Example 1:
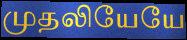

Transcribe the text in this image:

முதலியேயே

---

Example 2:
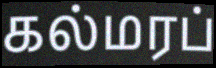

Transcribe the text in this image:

கல்மரப்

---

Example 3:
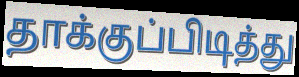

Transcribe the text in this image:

தாக்குப்பிடித்து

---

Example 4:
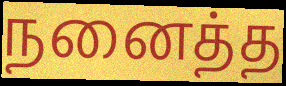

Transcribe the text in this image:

நனைத்த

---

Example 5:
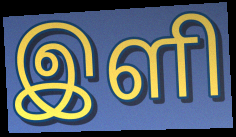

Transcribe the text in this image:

இளி